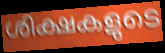
ശിക്ഷകളുടെ